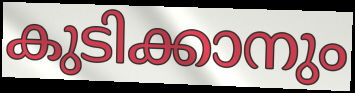
കുടിക്കാനും